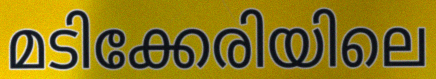
മടിക്കേരിയിലെ